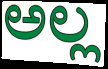
ಅಲ್ಲ